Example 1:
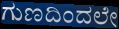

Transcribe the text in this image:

ಗುಣದಿಂದಲೇ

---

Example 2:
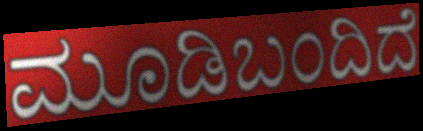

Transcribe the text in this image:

ಮೂಡಿಬಂದಿದೆ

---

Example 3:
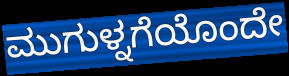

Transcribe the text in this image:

ಮುಗುಳ್ನಗೆಯೊಂದೇ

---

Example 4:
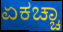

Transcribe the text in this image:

ಏಕಚ್ಚಾ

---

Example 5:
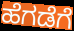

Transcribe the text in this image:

ಹೆಗಡೆಗೆ